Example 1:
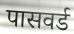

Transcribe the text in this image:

पासवर्ड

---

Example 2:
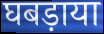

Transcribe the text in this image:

घबड़ाया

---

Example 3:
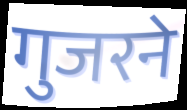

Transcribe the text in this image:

गुजरने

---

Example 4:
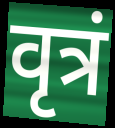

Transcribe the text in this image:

वृत्रं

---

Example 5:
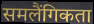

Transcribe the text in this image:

समलैंगिकता